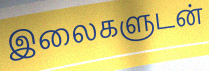
இலைகளுடன்